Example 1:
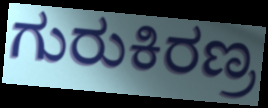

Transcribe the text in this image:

ಗುರುಕಿರಣ್ರ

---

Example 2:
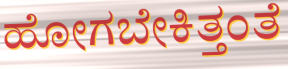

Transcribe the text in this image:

ಹೋಗಬೇಕಿತ್ತಂತೆ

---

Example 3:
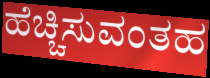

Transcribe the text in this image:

ಹೆಚ್ಚಿಸುವಂತಹ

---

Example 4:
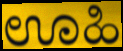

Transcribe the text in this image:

ಊಹಿ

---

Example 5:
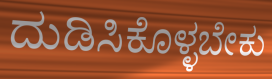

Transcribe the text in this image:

ದುಡಿಸಿಕೊಳ್ಳಬೇಕು